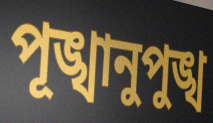
পূঙ্খানুপুঙ্খ